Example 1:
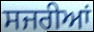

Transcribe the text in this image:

ਸਜਰੀਆਂ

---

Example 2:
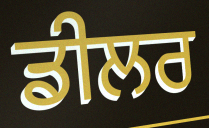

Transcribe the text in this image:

ਡੀਲਰ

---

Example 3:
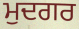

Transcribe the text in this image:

ਮੁਦਗਰ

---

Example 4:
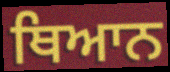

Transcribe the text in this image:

ਥਿਆਨ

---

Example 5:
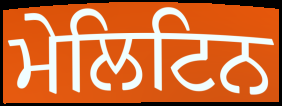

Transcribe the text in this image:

ਮੇਲਿਟਿਨ